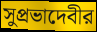
সুপ্রভাদেবীর